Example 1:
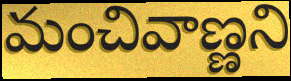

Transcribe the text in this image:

మంచివాణ్ణని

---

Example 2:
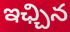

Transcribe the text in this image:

ఇఛ్చిన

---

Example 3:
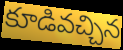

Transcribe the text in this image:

కూడివచ్చిన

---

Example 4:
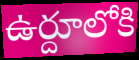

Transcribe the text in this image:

ఉర్దూలోకి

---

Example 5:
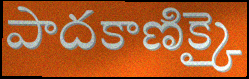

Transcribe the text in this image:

పాదకాణిక్కై